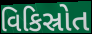
વિકિસ્રોત